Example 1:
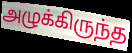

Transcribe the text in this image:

அழுக்கிருந்த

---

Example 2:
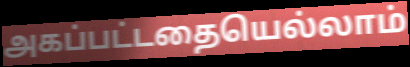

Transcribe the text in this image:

அகப்பட்டதையெல்லாம்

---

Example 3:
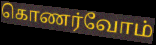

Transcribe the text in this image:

கொணர்வோம்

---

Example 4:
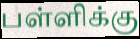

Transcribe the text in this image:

பள்ளிக்கு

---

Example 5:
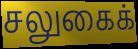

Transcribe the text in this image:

சலுகைக்